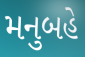
મનુબહે